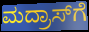
ಮದ್ರಾಸ್‍ಗೆ